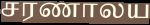
சரணாலய